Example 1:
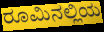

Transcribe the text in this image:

ರೂಮಿನಲ್ಲಿಯ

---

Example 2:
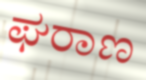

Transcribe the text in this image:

ಘರಾಣ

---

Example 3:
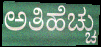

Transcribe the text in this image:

ಅತಿಹೆಚ್ಚು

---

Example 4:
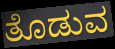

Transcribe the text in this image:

ತೊಡುವ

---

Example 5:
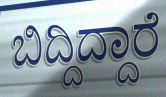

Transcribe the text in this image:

ಬಿದ್ದಿದ್ದಾರೆ